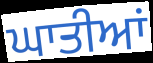
ਘਾਤੀਆਂ